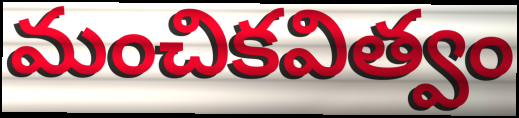
మంచికవిత్వం